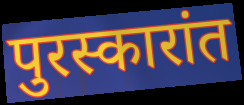
पुरस्कारांत